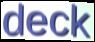
deck